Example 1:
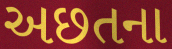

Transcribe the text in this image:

અછતના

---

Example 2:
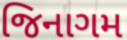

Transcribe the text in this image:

જિનાગમ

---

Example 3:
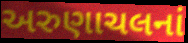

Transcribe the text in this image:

અરુણાચલનાં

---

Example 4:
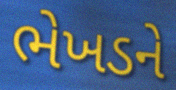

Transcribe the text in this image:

ભેખડને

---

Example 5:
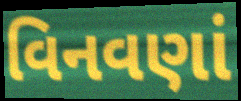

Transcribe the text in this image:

વિનવણાં